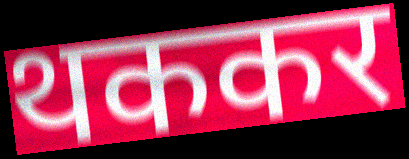
थककर